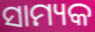
ସାମ୍ୟକ